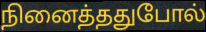
நினைத்ததுபோல்